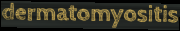
dermatomyositis